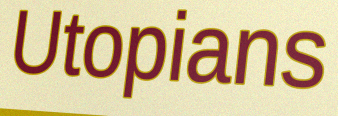
Utopians